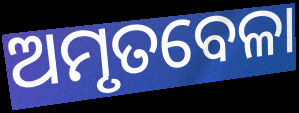
ଅମୃତବେଳା